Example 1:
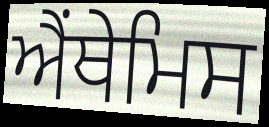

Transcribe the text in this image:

ਐਂਥੇਮਿਸ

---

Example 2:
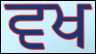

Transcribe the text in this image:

ਵਖ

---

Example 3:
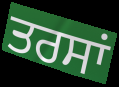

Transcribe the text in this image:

ਤਰਸਾਂ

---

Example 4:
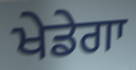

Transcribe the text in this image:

ਖੇਡੇਗਾ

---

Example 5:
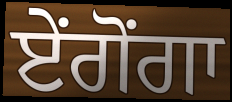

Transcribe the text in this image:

ਏਂਗੋਂਗਾ